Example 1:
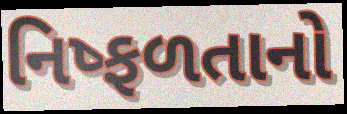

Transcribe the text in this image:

નિષ્ફળતાનો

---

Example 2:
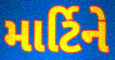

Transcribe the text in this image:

માર્ટિને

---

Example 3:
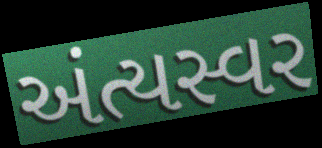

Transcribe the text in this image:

અંત્યસ્વર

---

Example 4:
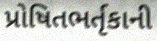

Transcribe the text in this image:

પ્રોષિતભર્તૃકાની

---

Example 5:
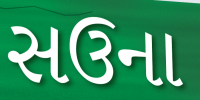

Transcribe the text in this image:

સઉના